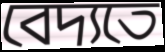
বেদ্যতে